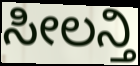
ಸೀಲನ್ತಿ